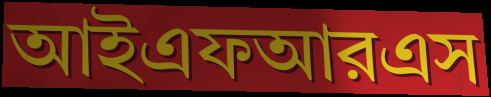
আইএফআরএস